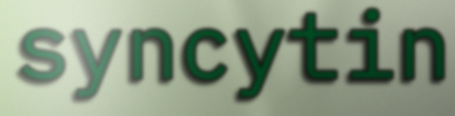
syncytin